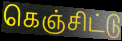
கெஞ்சிட்டு